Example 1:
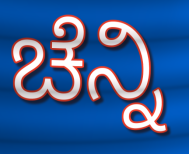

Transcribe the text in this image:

ಚೆನ್ನಿ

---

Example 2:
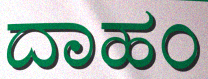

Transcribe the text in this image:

ದಾಹಂ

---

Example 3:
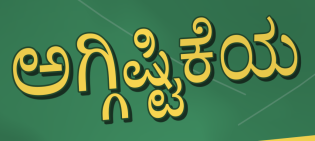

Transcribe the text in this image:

ಅಗ್ಗಿಷ್ಟಿಕೆಯ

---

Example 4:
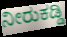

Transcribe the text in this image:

ನೀರುಕಡ್ಡಿ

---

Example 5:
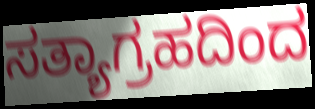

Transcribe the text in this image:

ಸತ್ಯಾಗ್ರಹದಿಂದ